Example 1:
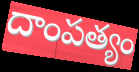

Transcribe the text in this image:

దాంపత్యం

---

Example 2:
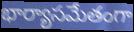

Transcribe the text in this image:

భార్యాసమేతంగా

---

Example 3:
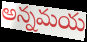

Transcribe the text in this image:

అన్నమయ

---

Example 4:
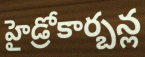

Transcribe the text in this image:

హైడ్రోకార్బన్ల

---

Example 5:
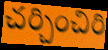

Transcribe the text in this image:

చర్చించిరి